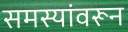
समस्यांवरून